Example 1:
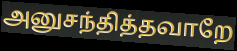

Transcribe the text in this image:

அனுசந்தித்தவாறே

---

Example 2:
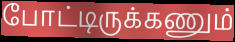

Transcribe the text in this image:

போட்டிருக்கணும்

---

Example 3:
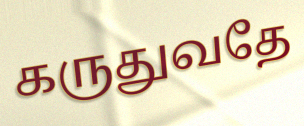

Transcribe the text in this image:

கருதுவதே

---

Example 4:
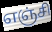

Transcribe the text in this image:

எஞ்சி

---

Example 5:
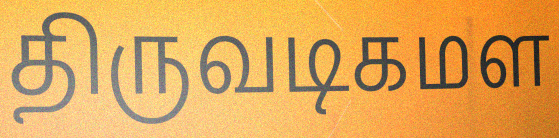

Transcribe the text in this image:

திருவடிகமள